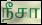
நீசா